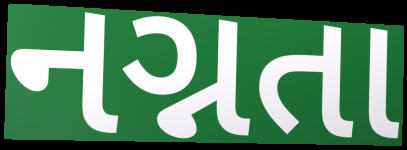
નગ્નતા